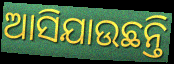
ଆସିଯାଉଛନ୍ତି